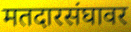
मतदारसंघावर